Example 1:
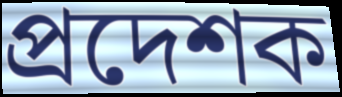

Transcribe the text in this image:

প্ৰদেশক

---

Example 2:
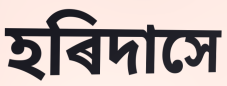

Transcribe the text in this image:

হৰিদাসে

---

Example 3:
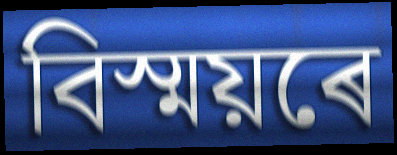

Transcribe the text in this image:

বিস্ময়ৰে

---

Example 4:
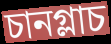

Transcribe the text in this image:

চানগ্লাচ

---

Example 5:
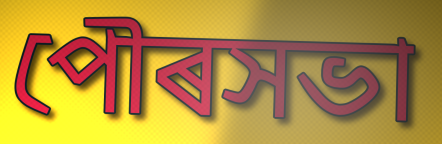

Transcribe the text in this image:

পৌৰসভা